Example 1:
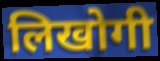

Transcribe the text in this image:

लिखोगी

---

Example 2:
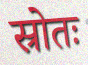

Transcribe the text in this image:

स्रोतः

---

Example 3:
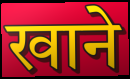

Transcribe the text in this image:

खाने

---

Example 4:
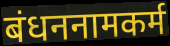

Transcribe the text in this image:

बंधननामकर्म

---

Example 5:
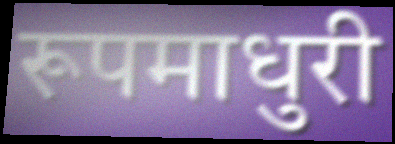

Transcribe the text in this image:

रूपमाधुरी